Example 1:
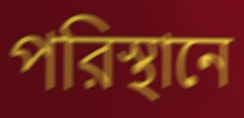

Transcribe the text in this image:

পরিস্থানে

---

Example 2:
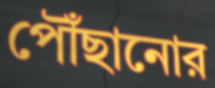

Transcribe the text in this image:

পৌঁছানোর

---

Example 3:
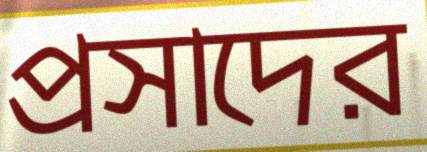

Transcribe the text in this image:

প্রসাদের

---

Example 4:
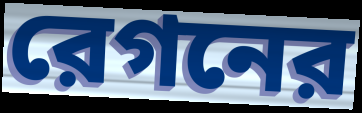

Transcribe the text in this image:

রেগনের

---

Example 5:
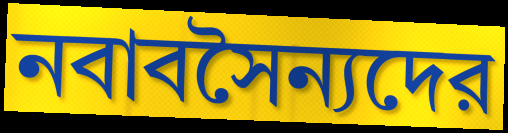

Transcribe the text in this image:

নবাবসৈন্যদের